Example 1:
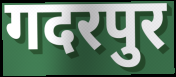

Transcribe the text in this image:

गदरपुर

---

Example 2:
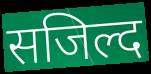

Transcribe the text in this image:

सजिल्द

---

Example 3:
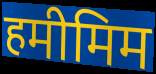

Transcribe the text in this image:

हमीमिम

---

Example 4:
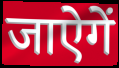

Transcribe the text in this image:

जाऐगें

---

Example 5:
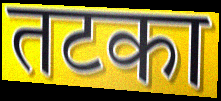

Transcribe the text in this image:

तटका